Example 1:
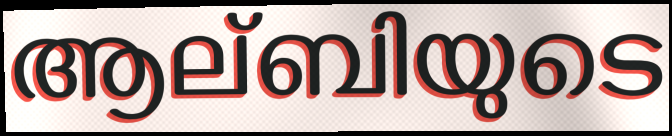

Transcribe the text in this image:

ആല്ബിയുടെ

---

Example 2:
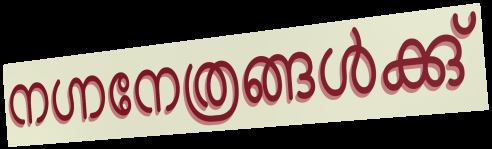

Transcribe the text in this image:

നഗ്നനേത്രങ്ങൾക്കു്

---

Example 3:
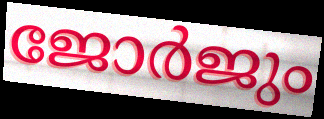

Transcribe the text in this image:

ജോർജും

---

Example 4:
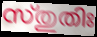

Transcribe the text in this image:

സ്തുതിഃ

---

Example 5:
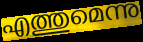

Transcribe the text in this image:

എത്തുമെന്നു